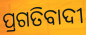
ପ୍ରଗତିବାଦୀ